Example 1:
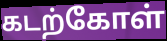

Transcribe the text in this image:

கடற்கோள்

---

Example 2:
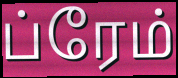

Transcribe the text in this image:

ப்ரேம்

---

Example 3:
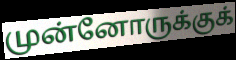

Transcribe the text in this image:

முன்னோருக்குக்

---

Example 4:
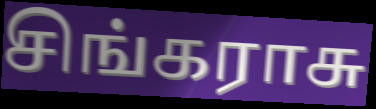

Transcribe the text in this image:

சிங்கராசு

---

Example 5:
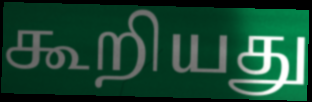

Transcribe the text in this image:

கூறியது